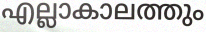
എല്ലാകാലത്തും